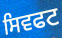
ਸਿਵਫਟ